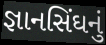
જ્ઞાનસિંઘનું